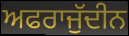
ਅਫਰਾਜੁੱਦੀਨ